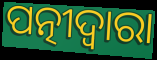
ପତ୍ନୀଦ୍ୱାରା